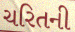
ચરિતની